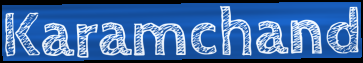
Karamchand